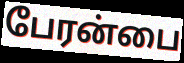
பேரன்பை